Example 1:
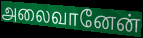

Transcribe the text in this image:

அலைவானேன்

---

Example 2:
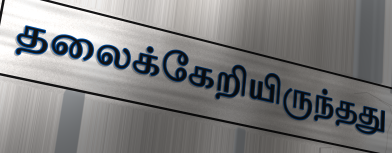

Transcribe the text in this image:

தலைக்கேறியிருந்தது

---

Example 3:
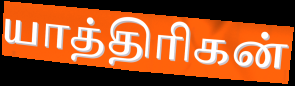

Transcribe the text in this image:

யாத்திரிகன்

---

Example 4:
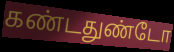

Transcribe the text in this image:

கண்டதுண்டோ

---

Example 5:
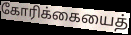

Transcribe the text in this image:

கோரிக்கையைத்